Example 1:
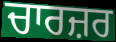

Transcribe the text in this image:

ਚਾਰਜ਼ਰ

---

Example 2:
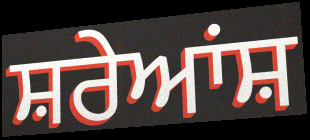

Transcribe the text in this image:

ਸ਼ਰੇਆਂਸ਼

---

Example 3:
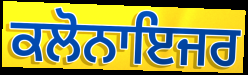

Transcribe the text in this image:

ਕਲੋਨਾਇਜਰ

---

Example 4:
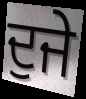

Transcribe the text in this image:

ਦੁਜੇ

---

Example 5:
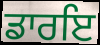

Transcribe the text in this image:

ਡਾਰਇ